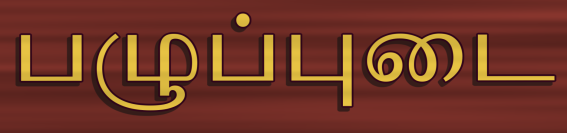
பழுப்புடை